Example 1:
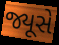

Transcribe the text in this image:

જ્યૂસે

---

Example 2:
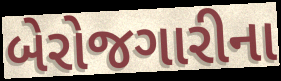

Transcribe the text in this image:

બેરોજગારીના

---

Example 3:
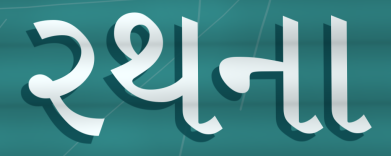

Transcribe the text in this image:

રથના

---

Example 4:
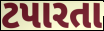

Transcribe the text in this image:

ટપારતા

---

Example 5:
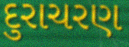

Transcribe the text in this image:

દુરાચરણ